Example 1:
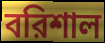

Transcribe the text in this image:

বরিশাল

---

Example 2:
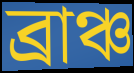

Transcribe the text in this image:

ব্রাঞ্চ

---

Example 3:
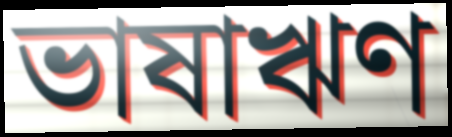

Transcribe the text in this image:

ভাষাঋণ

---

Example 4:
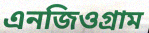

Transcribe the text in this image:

এনজিওগ্রাম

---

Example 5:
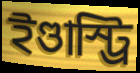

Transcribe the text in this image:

ইণ্ডাস্ট্রি